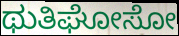
ಥುತಿಘೋಸೋ